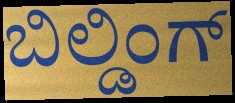
ಬಿಲ್ಡಿಂಗ್